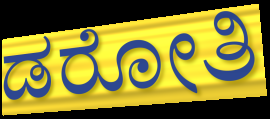
ಡರೋತಿ